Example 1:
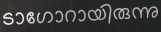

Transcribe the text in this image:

ടാഗോറായിരുന്നു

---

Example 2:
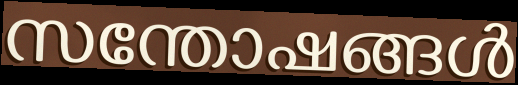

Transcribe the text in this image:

സന്തോഷങ്ങൾ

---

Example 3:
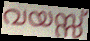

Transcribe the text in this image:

വയസ്സ്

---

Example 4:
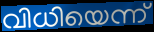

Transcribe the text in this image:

വിധിയെന്ന്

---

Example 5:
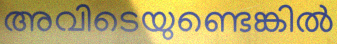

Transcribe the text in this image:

അവിടെയുണ്ടെങ്കിൽ